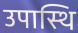
उपास्थि